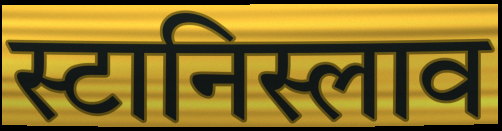
स्टानिस्लाव